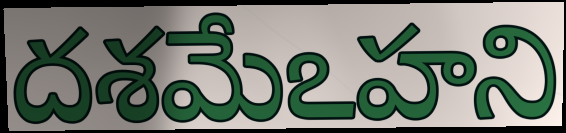
దశమేఽహని